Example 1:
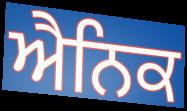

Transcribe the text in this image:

ਐਨਿਕ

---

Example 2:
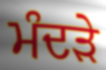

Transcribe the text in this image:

ਮੰਦੜੇ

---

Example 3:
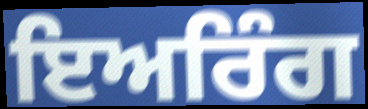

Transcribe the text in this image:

ਇਅਰਿੰਗ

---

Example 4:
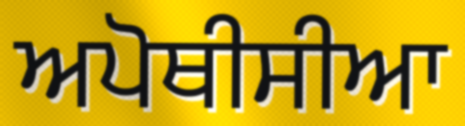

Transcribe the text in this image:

ਅਪੋਥੀਸੀਆ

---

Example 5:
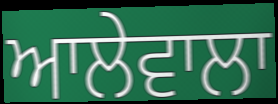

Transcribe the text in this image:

ਆਲੇਵਾਲਾ